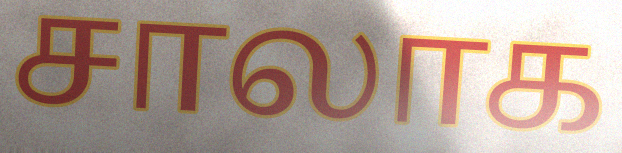
சாலாக